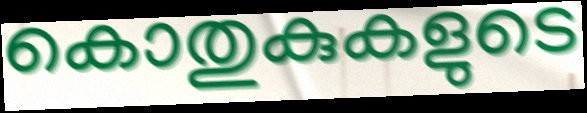
കൊതുകുകളുടെ